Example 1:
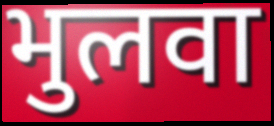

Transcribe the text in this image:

भुलवा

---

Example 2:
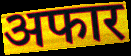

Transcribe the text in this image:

अफार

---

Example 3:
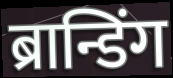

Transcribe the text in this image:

ब्रान्डिंग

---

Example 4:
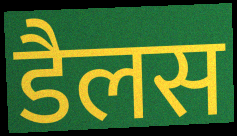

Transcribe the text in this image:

डैलस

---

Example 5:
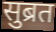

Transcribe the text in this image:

सुब्रत